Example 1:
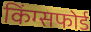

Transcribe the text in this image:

किंग्सफोर्ड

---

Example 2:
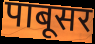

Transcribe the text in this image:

पाबूसर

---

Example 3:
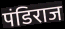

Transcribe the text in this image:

पंडिराज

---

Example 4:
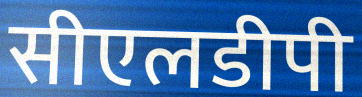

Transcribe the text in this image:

सीएलडीपी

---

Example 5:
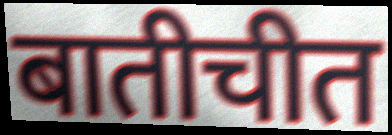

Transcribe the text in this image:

बातीचीत